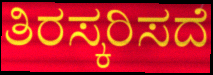
ತಿರಸ್ಕರಿಸದೆ